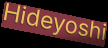
Hideyoshi